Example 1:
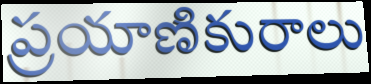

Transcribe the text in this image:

ప్రయాణికురాలు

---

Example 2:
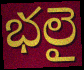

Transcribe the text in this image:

భలై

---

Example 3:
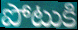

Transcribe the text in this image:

పోటుకి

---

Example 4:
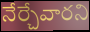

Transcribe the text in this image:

నేర్చేవారని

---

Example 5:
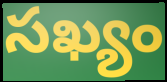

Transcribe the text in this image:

సఖ్యం